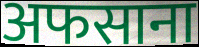
अफसाना